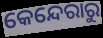
କେନ୍ଦେରାରୁ